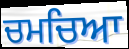
ਚਮਚਿਆ